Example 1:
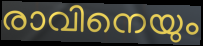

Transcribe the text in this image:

രാവിനെയും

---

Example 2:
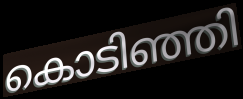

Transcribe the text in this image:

കൊടിഞ്ഞി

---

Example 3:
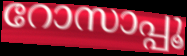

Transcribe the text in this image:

റോസാപ്പൂ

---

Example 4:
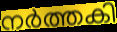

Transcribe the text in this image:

നർത്തകി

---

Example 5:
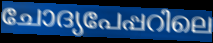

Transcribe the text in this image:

ചോദ്യപേപ്പറിലെ